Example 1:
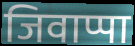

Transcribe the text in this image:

जिवाप्पा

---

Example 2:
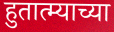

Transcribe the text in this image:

हुतात्म्याच्या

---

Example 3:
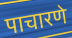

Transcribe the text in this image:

पाचारणे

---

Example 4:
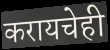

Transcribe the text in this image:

करायचेही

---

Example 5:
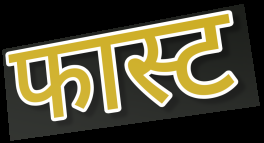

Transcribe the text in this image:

फास्ट